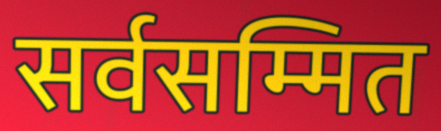
सर्वसम्मित